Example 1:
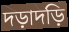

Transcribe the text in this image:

দড়াদড়ি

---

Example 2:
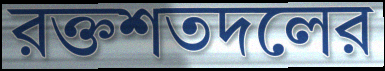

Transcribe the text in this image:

রক্তশতদলের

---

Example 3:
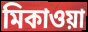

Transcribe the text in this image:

মিকাওয়া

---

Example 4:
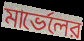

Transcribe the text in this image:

মার্ভেলের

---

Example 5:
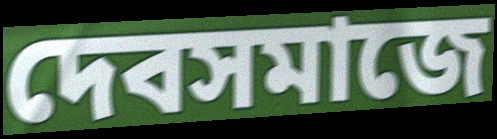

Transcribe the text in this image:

দেবসমাজে